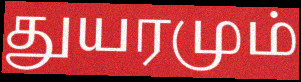
துயரமும்